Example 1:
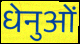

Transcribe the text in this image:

धेनुओं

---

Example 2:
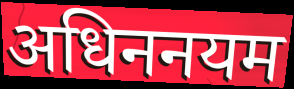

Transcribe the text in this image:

अधिननयम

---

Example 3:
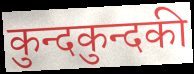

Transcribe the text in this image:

कुन्दकुन्दकी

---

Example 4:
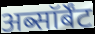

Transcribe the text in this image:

अब्सॉर्बेंट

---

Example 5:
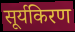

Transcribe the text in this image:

सूर्यकिरण